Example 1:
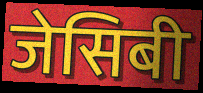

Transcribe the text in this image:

जेसिबी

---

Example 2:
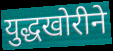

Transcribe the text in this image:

युद्धखोरीने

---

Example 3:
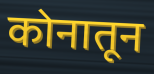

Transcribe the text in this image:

कोनातून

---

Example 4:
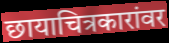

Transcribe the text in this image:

छायाचित्रकारांवर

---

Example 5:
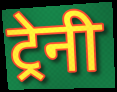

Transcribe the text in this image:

ट्रेनी